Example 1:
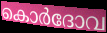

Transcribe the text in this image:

കൊർദോവ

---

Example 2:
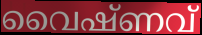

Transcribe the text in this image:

വൈഷ്ണവ്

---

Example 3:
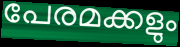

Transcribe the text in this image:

പേരമക്കളും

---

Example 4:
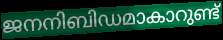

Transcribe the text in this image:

ജനനിബിഡമാകാറുണ്ട്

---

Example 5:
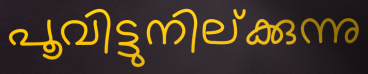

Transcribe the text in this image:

പൂവിട്ടുനില്ക്കുന്നു